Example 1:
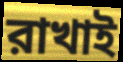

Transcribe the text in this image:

রাখাই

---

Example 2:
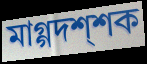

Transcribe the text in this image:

মাগ্গদশ্শক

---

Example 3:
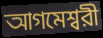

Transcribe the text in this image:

আগমেশ্বরী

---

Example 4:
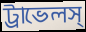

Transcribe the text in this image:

ট্রাভেলস্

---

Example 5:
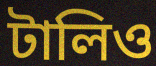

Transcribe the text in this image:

টালিও